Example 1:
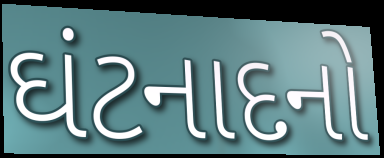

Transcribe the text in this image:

ઘંટનાદનો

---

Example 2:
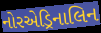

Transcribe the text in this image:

નોરએડ્રિનાલિન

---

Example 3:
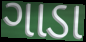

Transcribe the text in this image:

ગાડા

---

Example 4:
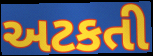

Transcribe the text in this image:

અટકતી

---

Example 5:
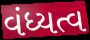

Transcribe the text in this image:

વંધ્યત્વ